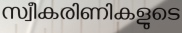
സ്വീകരിണികളുടെ